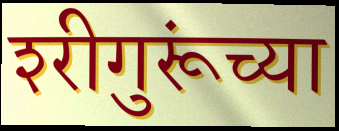
श्रीगुरूंच्या